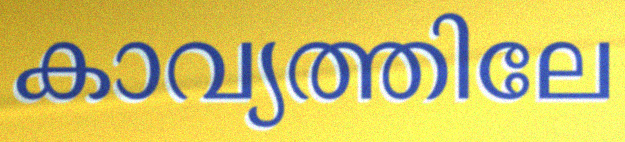
കാവ്യത്തിലേ